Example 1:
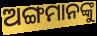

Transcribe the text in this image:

ଅଙ୍ଗମାନଙ୍କୁ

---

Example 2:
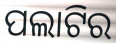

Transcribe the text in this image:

ପଲାଟିର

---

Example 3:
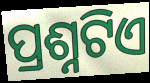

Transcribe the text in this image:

ପ୍ରଶ୍ନଟିଏ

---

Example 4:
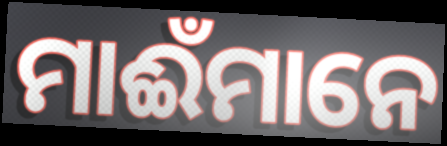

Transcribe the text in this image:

ମାଈଁମାନେ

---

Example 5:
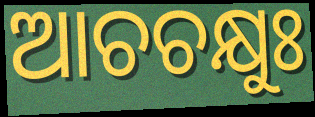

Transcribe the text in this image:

ଆଚଚକ୍ଷୁଃ